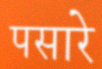
पसारे